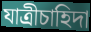
যাত্রীচাহিদা